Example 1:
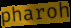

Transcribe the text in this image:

pharoh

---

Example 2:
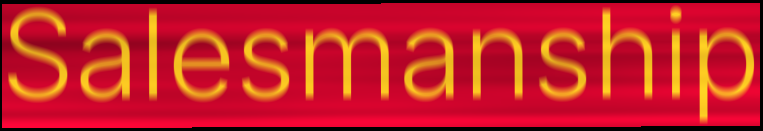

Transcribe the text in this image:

Salesmanship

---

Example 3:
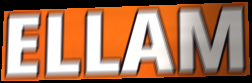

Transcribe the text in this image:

ELLAM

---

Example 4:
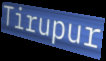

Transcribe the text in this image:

Tirupur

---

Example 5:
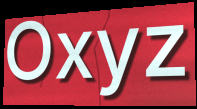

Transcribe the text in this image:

Oxyz